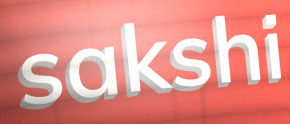
sakshi